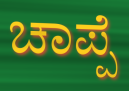
ಚಾಪ್ಪೆ